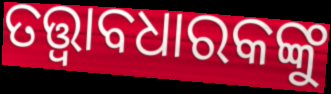
ତତ୍ତ୍ଵାବଧାରକଙ୍କୁ